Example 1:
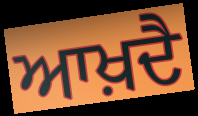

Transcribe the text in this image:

ਆਖ਼ਦੈ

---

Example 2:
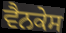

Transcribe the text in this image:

ਵੈਨਕੇਸ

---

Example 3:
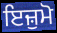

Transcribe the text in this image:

ਇਜ਼ੁਮੋ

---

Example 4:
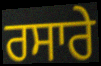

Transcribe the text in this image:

ਰਸਾਰੇ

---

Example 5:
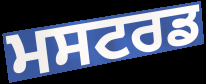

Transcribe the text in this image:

ਮਸਟਰਡ